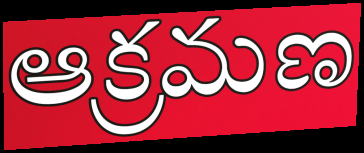
ఆక్రమణ